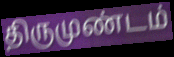
திருமுண்டம்